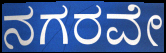
ನಗರವೇ